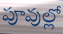
పూవుల్లో